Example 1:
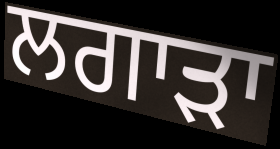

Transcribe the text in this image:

ਲਗਾੜਾ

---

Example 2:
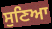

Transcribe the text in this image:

ਸੁਣਿਆ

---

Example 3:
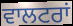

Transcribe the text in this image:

ਵਾਲਟਰਾਂ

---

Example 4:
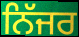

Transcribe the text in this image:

ਨਿੱਜਰ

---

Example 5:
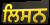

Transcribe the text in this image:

ਲਿਸਨ